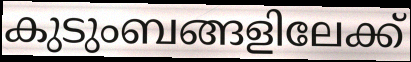
കുടുംബങ്ങളിലേക്ക്